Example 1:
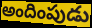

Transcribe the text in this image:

అందింపుడు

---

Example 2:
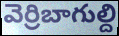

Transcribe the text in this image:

వెర్రిబాగుల్ది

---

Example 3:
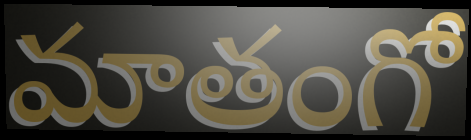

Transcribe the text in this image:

మాతంగో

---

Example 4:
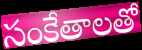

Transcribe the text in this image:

సంకేతాలతో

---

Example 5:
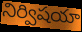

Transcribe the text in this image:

నిర్విషయా